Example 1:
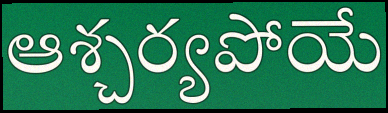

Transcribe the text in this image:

ఆశ్చర్యపోయే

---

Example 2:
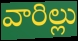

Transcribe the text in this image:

వారిల్లు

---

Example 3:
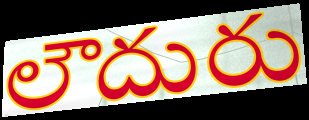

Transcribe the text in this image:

లౌదురు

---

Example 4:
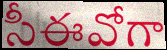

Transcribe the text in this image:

సీఈవోగా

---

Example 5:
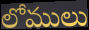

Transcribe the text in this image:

లోములు